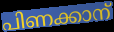
പിണക്കാന്